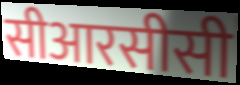
सीआरसीसी